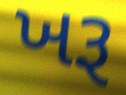
ખરૂ